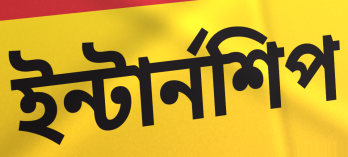
ইন্টার্নশিপ